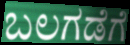
ಬಲಗಡೆಗೆ